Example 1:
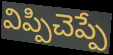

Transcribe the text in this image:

విప్పిచెప్పే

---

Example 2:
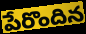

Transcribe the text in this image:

పేరొందిన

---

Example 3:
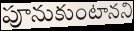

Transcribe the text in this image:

పూనుకుంటానని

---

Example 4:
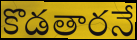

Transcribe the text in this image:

కొడతారనే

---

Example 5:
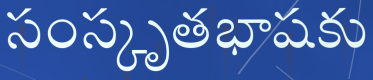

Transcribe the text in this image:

సంస్కృతభాషకు